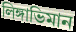
লিঙ্গাভিমান